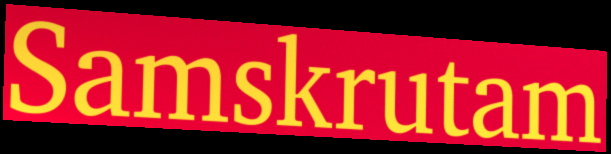
Samskrutam